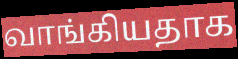
வாங்கியதாக